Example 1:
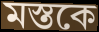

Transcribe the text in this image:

মস্তকে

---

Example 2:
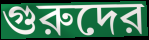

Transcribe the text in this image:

গুরুদের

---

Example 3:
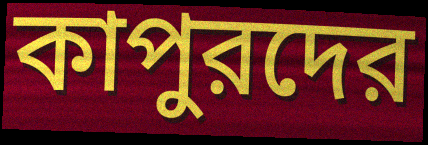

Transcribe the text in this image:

কাপুরদের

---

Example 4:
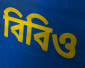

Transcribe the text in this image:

বিবিও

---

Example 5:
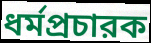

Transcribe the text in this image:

ধর্মপ্রচারক